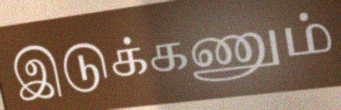
இடுக்கணும்